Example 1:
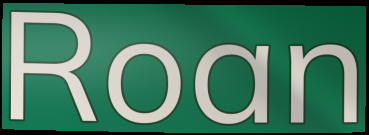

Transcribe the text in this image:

Roan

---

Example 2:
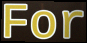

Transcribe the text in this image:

For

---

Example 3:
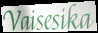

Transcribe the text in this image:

Vaisesika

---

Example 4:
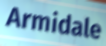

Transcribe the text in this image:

Armidale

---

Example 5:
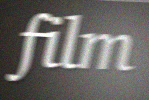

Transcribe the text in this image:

film